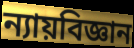
ন্যায়বিজ্ঞান